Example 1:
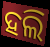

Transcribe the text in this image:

ହଲି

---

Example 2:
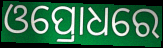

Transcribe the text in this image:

ଓପ୍ରୋଧରେ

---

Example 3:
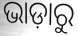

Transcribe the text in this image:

ଭାଡ଼ାରୁ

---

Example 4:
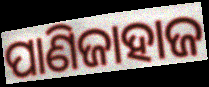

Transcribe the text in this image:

ପାଣିଜାହାଜ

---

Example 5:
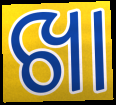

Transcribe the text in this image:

ଖା